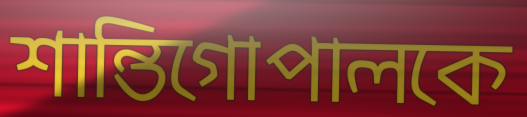
শান্তিগোপালকে